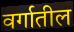
वर्गातील